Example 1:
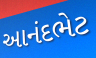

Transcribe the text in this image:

આનંદભેટ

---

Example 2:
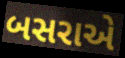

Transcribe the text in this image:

બસરાએ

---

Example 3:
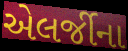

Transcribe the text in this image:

એલર્જીના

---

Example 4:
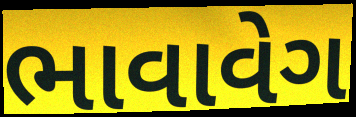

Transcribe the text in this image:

ભાવાવેગ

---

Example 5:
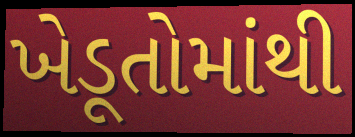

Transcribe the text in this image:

ખેડૂતોમાંથી